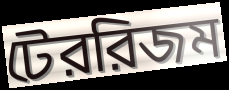
টেররিজম